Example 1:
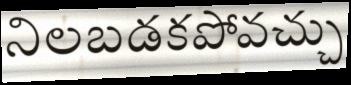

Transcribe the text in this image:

నిలబడకపోవచ్చు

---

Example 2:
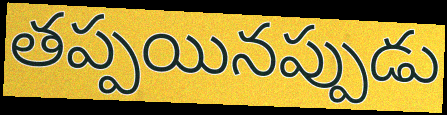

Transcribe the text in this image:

తప్పయినప్పుడు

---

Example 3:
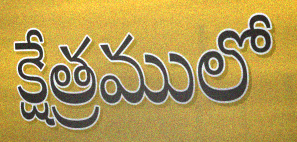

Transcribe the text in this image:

క్షేత్రములో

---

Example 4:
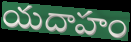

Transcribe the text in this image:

యదాహం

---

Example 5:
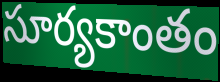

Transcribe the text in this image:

సూర్యకాంతం